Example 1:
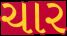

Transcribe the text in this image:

ચાર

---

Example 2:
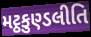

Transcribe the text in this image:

મટ્ઠકુણ્ડલીતિ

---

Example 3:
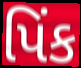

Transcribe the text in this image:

પિંક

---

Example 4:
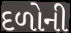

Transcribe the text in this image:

દળોની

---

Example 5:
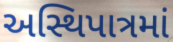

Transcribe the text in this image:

અસ્થિપાત્રમાં